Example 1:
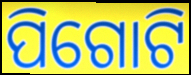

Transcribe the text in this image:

ପିଗୋଟି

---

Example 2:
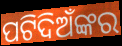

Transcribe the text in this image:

ପଟିଦିଅଁଙ୍କର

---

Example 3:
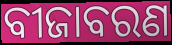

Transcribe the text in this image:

ବୀଜାବରଣ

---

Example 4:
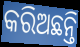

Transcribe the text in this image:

କରିଅଛନ୍ତି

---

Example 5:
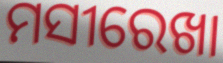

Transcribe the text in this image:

ମସୀରେଖା